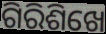
ଗିରିଶିଖେ